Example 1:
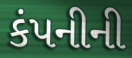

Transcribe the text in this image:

કંપનીની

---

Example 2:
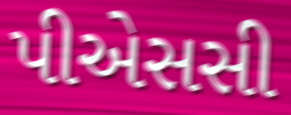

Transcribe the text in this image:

પીએસસી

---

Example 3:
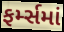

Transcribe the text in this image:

ફર્મ્સમાં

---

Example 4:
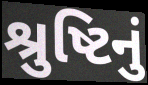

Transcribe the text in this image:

શ્રુષ્ટિનું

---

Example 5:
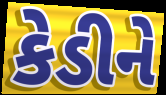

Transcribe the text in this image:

કેડીને